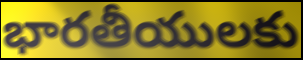
భారతీయులకు